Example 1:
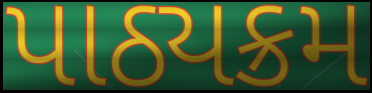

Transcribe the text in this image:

પાઠ્યક્રમ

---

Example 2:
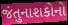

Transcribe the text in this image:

જંતુનાશકોનો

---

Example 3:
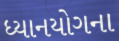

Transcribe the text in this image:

ધ્યાનયોગના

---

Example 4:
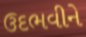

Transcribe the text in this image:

ઉદભવીને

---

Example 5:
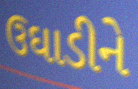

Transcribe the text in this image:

ઉઘાડીને